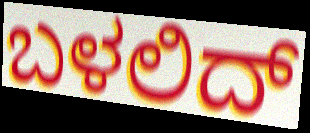
ಬಳಲಿದ್